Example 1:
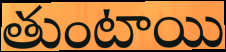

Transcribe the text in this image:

తుంటాయి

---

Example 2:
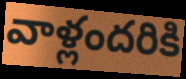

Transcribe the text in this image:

వాళ్లందరికి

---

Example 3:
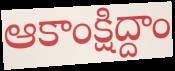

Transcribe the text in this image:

ఆకాంక్షిద్దాం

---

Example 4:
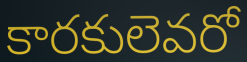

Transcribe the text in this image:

కారకులెవరో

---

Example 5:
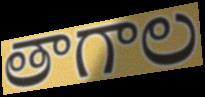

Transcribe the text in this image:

తాగాల